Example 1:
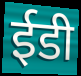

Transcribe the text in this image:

ईडी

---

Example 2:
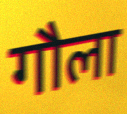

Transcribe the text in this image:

गौला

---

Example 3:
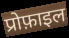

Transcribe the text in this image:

प्रोफ़ाइल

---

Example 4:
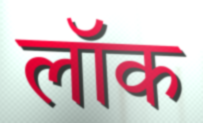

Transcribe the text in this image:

लॉक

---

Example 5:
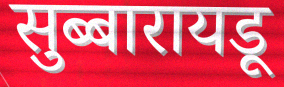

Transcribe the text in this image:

सुब्बारायडू